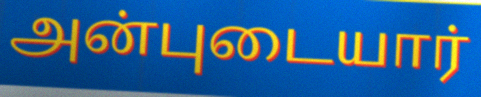
அன்புடையார்